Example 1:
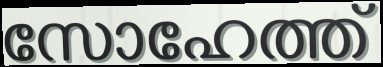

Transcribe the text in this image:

സോഹേത്ത്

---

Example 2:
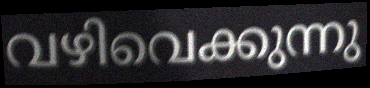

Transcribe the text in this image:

വഴിവെക്കുന്നു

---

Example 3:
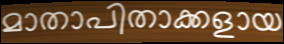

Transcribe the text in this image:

മാതാപിതാക്കളായ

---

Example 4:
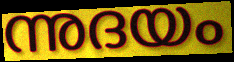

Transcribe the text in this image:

ന്നുദയം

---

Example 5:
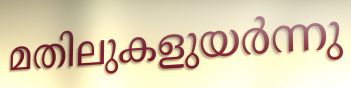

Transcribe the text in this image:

മതിലുകളുയർന്നു